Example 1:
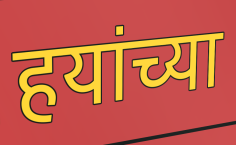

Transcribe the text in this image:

हयांच्या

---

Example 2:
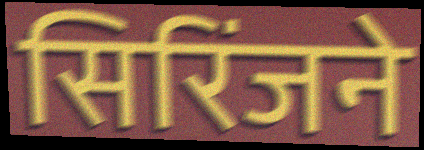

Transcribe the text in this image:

सिरिंजने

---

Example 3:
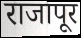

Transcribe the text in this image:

राजापूर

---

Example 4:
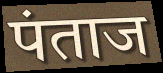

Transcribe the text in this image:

पंताज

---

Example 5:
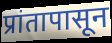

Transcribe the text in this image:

प्रांतापासून